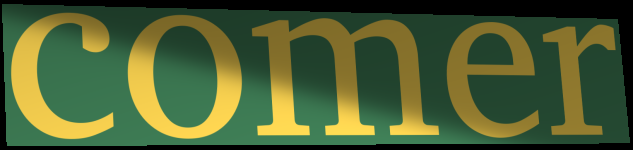
comer